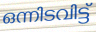
ഒന്നിടവിട്ട്